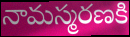
నామస్మరణకి